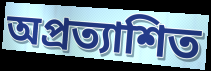
অপ্রত্যাশিত